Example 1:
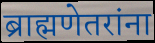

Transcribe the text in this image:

ब्राह्मणेतरांना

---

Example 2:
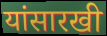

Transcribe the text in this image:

यांसारखी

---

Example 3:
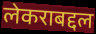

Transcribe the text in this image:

लेकराबद्दल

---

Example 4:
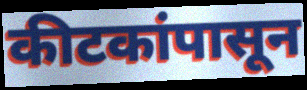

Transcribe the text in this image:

कीटकांपासून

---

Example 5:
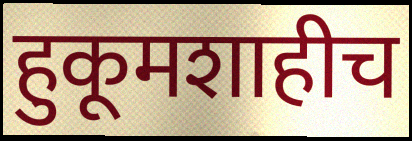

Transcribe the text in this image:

हुकूमशाहीच